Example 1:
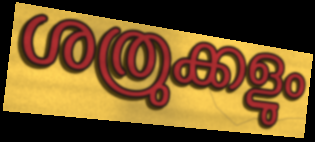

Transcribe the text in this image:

ശത്രുക്കളും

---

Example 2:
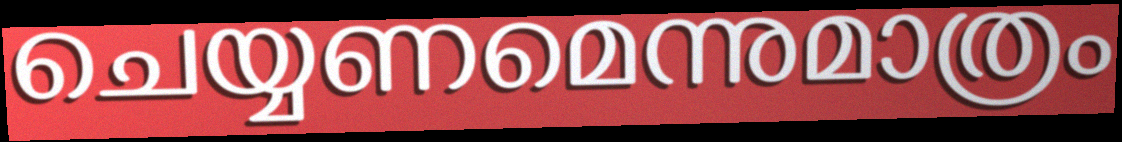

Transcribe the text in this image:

ചെയ്യണമെന്നുമാത്രം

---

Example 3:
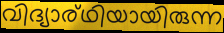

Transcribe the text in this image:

വിദ്യാര്ഥിയായിരുന്ന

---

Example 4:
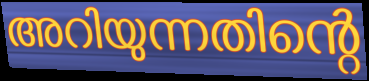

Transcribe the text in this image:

അറിയുന്നതിന്റെ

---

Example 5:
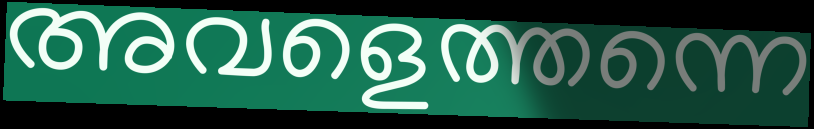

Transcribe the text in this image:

അവളെത്തന്നെ